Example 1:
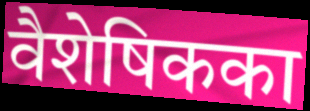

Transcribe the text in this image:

वैशेषिकका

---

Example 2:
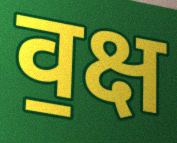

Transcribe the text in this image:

व॒क्ष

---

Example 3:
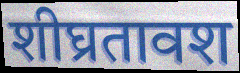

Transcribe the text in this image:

शीघ्रतावश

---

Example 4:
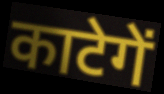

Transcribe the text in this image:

काटेगें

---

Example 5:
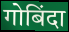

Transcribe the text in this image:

गोबिंदा